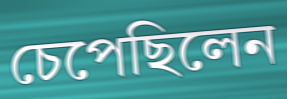
চেপেছিলেন